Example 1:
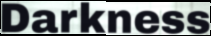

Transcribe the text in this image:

Darkness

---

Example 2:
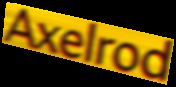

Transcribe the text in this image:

Axelrod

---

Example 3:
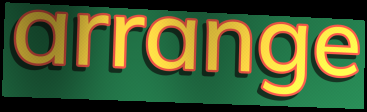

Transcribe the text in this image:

arrange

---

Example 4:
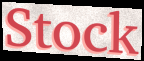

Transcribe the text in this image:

Stock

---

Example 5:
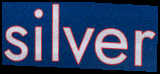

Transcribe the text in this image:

silver